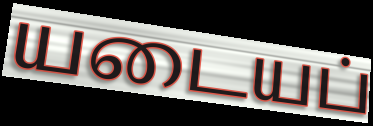
யடையப்